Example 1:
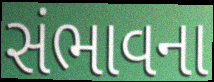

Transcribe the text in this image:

સંભાવના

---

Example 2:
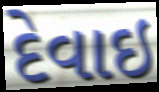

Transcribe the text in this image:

દેવાઇ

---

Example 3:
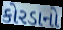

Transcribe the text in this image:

કોરડાનો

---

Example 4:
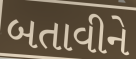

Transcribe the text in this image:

બતાવીને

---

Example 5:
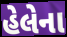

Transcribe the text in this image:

હેલેના